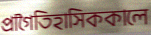
প্রাগৈতিহাসিককালে